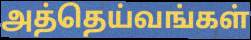
அத்தெய்வங்கள்